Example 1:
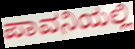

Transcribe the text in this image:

ಪಾವನಿಯಲ್ಲಿ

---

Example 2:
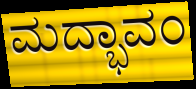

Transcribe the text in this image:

ಮದ್ಭಾವಂ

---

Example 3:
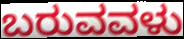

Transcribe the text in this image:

ಬರುವವಳು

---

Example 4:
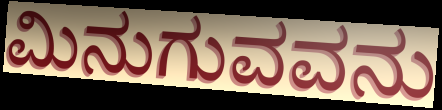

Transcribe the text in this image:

ಮಿನುಗುವವನು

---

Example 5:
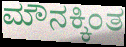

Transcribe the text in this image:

ಮೌನಕ್ಕಿಂತ